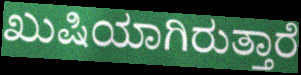
ಖುಷಿಯಾಗಿರುತ್ತಾರೆ